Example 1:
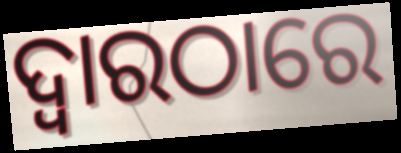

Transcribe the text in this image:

ଦ୍ୱାରଠାରେ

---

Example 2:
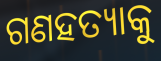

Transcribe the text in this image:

ଗଣହତ୍ୟାକୁ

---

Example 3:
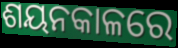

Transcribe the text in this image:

ଶୟନକାଳରେ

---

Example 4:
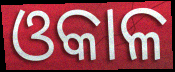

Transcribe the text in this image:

ଓକାଳ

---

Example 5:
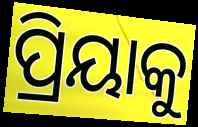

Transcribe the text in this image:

ପ୍ରିୟାକୁ